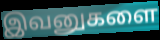
இவனுகளை